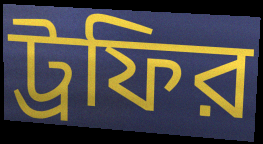
ট্রফির